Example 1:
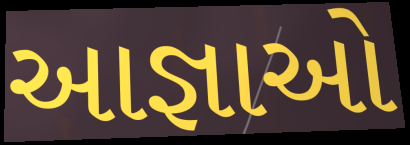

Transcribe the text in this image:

આજ્ઞાઓ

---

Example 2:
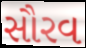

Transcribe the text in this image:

સૌરવ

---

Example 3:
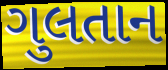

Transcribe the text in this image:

ગુલતાન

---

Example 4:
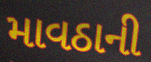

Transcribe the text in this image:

માવઠાની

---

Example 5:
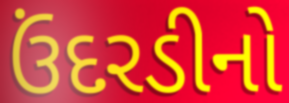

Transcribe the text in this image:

ઉંદરડીનો